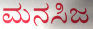
ಮನಸಿಜ